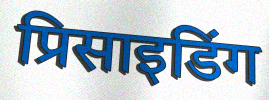
प्रिसाइडिंग